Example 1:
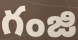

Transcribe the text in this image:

గంజి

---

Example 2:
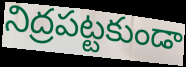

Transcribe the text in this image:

నిద్రపట్టకుండా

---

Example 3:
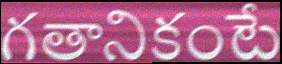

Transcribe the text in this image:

గతానికంటే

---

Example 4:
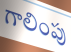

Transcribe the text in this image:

గాలింపు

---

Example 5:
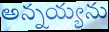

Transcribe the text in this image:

అన్నయ్యను